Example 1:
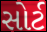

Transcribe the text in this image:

સોર્ટ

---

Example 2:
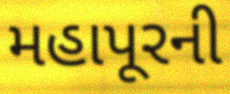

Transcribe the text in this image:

મહાપૂરની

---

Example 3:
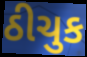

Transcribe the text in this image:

ઠીચુક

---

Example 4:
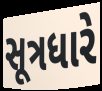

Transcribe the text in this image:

સૂત્રધારે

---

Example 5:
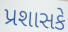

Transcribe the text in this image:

પ્રશાસકે